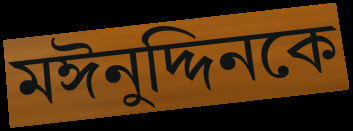
মঈনুদ্দিনকে